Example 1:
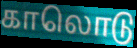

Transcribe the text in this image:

காலொடு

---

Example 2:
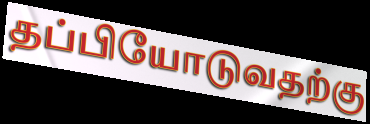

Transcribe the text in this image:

தப்பியோடுவதற்கு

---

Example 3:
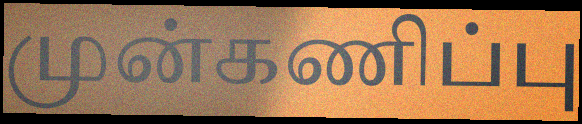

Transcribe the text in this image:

முன்கணிப்பு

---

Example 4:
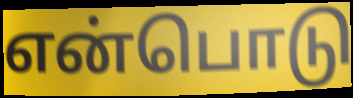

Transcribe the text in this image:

என்பொடு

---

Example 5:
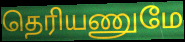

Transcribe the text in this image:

தெரியணுமே